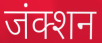
जंक्शन